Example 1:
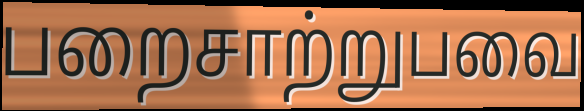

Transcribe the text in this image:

பறைசாற்றுபவை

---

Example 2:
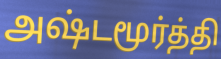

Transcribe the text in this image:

அஷ்டமூர்த்தி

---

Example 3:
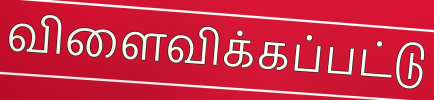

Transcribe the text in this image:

விளைவிக்கப்பட்டு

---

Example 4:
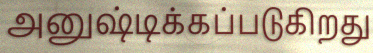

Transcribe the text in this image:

அனுஷ்டிக்கப்படுகிறது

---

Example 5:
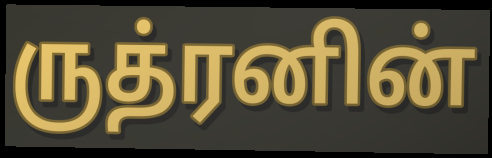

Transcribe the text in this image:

ருத்ரனின்